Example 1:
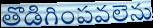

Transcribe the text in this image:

తొడిగింపవలెను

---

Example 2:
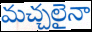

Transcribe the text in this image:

మచ్చలైనా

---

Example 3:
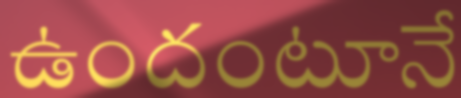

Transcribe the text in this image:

ఉందంటూనే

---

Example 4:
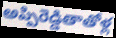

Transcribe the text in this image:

అప్పిరెడ్డితాతోళ్ల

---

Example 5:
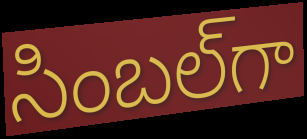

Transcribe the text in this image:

సింబల్‌గా